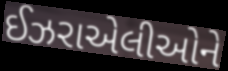
ઈઝરાએલીઓને